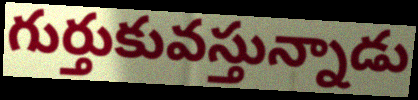
గుర్తుకువస్తున్నాడు